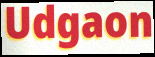
Udgaon